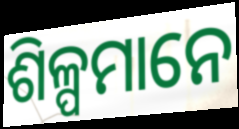
ଶିଳ୍ପମାନେ